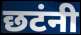
छटंनी